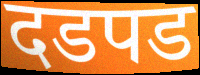
दडपड